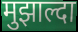
मुझाल्दा